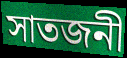
সাতজনী